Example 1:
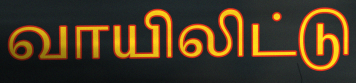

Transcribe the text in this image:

வாயிலிட்டு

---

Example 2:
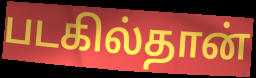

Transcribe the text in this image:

படகில்தான்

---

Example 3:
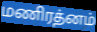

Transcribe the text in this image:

மணிரத்னம்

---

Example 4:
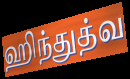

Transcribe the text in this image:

ஹிந்துத்வ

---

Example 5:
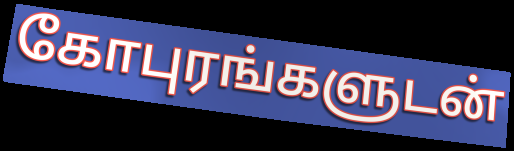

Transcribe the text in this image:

கோபுரங்களுடன்